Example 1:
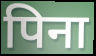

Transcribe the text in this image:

पिना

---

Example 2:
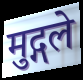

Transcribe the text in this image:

मुद्गले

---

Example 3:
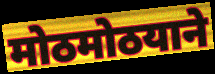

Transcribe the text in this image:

मोठमोठयाने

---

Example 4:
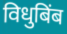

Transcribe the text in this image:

विधुबिंब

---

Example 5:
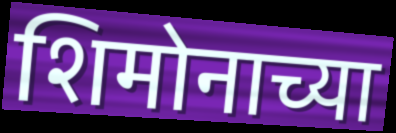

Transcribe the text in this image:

शिमोनाच्या